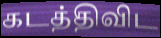
கடத்திவிட